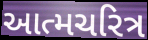
આત્મચરિત્ર